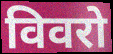
विवरो